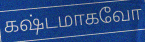
கஷ்டமாகவோ